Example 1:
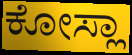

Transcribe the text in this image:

ಕೋಸ್ಲಾ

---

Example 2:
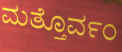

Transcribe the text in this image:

ಮತ್ತೊರ್ವಂ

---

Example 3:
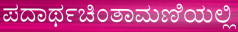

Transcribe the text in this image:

ಪದಾರ್ಥಚಿಂತಾಮಣಿಯಲ್ಲಿ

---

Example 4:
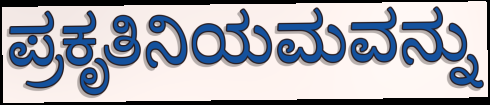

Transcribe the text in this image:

ಪ್ರಕೃತಿನಿಯಮವನ್ನು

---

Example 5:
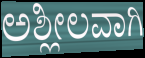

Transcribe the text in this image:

ಅಶ್ಲೀಲವಾಗಿ